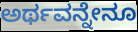
ಅರ್ಥವನ್ನೇನೂ